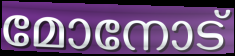
മോനോട്